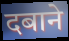
दबाने